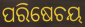
ପରିଷେଚୟ